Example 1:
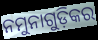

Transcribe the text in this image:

ନମୁନାଗୁଡ଼ିକର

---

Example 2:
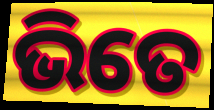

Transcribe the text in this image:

ଭିତେ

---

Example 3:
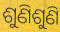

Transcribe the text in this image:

ଶୁଣିଶୁଣି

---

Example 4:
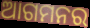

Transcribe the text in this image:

ଆଗମନର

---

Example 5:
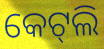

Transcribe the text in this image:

କେଟ୍‍ଲି